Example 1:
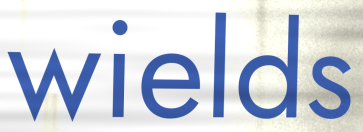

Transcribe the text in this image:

wields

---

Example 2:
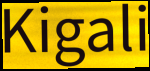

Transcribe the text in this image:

Kigali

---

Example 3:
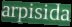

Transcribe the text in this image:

arpisida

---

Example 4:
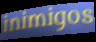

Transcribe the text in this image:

inimigos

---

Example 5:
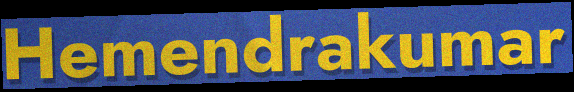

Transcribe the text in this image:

Hemendrakumar